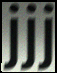
jjj